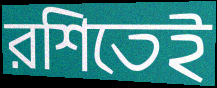
রশিতেই